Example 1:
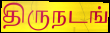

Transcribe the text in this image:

திருநடங்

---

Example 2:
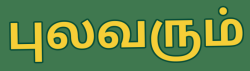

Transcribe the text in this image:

புலவரும்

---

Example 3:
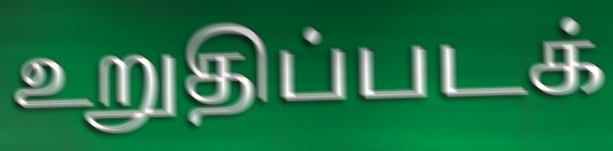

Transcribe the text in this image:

உறுதிப்படக்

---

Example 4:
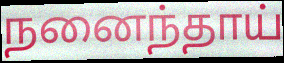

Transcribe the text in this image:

நனைந்தாய்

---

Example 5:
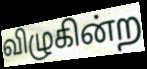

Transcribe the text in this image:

விழுகின்ற